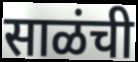
साळंची